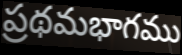
ప్రథమభాగము